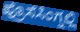
ಪ್ರೊಸೆಸಿಂಗ್ನಲ್ಲಿ